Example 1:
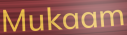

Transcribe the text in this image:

Mukaam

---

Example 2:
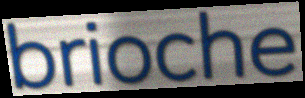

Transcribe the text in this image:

brioche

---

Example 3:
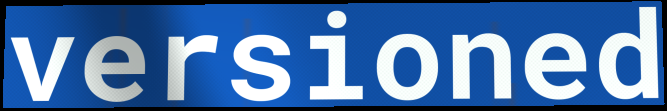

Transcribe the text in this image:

versioned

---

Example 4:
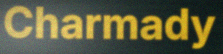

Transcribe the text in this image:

Charmady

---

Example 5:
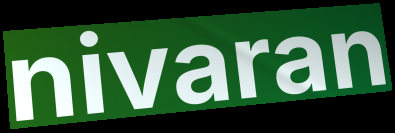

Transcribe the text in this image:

nivaran